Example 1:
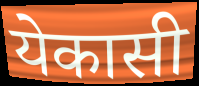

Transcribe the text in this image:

येकासी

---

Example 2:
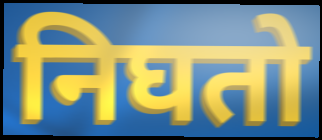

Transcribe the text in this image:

निघतो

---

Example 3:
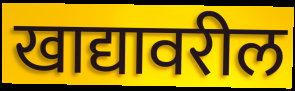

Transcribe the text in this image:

खाद्यावरील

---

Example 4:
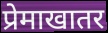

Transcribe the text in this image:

प्रेमाखातर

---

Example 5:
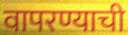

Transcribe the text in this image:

वापरण्याची